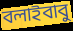
বলাইবাবু